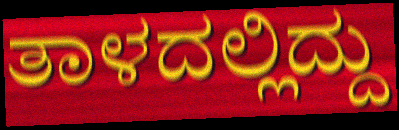
ತಾಳದಲ್ಲಿದ್ದು